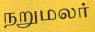
நறுமலர்